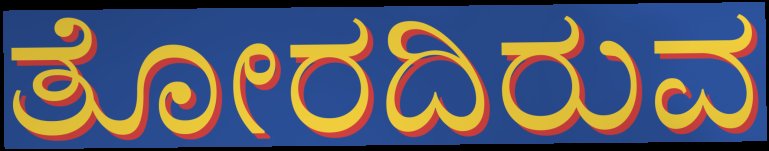
ತೋರದಿರುವ